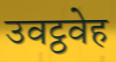
उवट्ठवेह